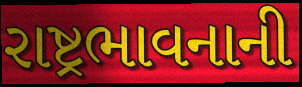
રાષ્ટ્રભાવનાની